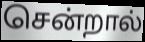
சென்றால்